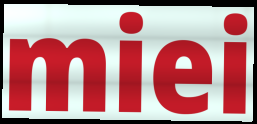
miei